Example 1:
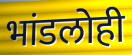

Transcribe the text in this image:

भांडलोही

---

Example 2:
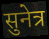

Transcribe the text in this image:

सुनेत्र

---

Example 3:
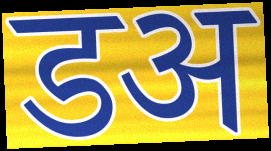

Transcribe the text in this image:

डअ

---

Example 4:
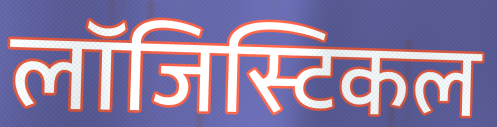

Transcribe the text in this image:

लॉजिस्टिकल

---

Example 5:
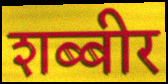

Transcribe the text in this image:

शब्बीर